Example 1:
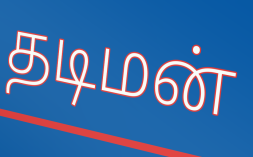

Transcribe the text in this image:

தடிமன்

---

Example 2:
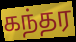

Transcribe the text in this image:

கந்தர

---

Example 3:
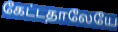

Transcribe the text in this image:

கேட்டதாலேயே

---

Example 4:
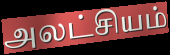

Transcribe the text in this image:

அலட்சியம்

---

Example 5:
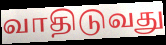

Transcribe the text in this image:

வாதிடுவது